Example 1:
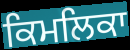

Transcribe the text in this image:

ਕਿਮਲਿਕਾ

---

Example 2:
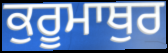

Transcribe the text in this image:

ਕੁਰੂਮਾਥੁਰ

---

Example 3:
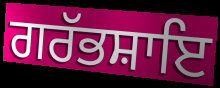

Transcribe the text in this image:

ਗਰੱਭਸ਼ਾਇ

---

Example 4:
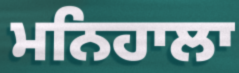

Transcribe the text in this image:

ਮਨਿਹਾਲਾ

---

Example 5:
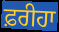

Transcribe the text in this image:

ਫ਼ਰੀਹਾ